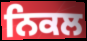
ਨਿਕਲ